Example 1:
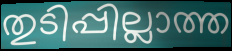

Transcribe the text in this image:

തുടിപ്പില്ലാത്ത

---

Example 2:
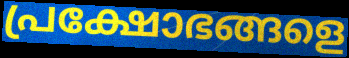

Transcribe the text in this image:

പ്രക്ഷോഭങ്ങളെ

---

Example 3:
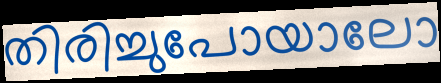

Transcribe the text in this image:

തിരിച്ചുപോയാലോ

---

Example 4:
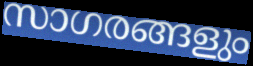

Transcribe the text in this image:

സാഗരങ്ങളും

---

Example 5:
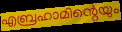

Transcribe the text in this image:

എബ്രഹാമിന്റെയും